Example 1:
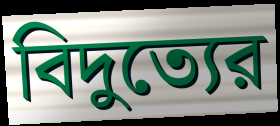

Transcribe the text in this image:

বিদুত্যের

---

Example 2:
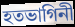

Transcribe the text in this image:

হতভাগিনী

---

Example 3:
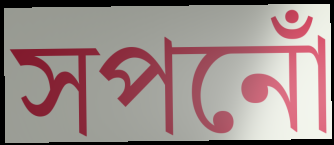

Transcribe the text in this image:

সপনোঁ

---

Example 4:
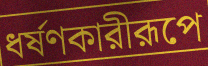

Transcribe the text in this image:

ধর্ষণকারীরূপে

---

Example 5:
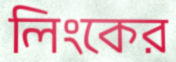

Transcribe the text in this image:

লিংকের